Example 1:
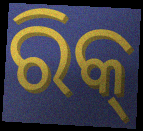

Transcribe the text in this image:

ରିକ୍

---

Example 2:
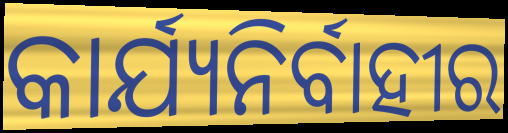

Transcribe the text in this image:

କାର୍ଯ୍ୟନିର୍ବାହୀର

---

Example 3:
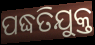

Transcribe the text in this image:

ପଦ୍ଧତିଯୁକ୍ତ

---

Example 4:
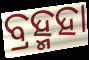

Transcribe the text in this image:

ବ୍ରହ୍ମହା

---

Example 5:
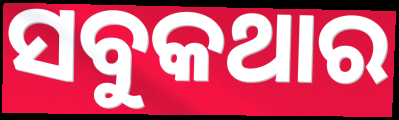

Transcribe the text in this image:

ସବୁକଥାର